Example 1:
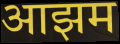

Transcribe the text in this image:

आझम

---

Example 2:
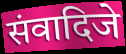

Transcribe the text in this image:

संवादिजे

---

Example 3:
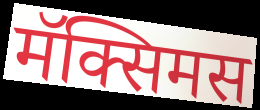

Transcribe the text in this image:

मॅक्सिमस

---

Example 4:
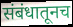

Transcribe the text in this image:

संबंधातूनच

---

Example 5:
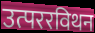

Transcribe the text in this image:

उत्पररविथन